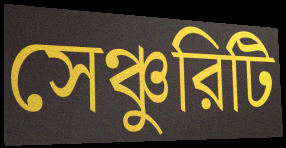
সেঞ্চুরিটি